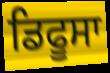
ਡਿਫੂਸਾ